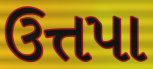
ઉત્તપા